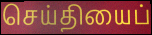
செய்தியைப்